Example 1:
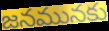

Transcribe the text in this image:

జనమునకు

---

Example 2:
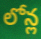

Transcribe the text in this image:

లోన్ల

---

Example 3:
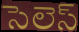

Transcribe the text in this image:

సెలెస్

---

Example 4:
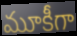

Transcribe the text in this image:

మూకీగా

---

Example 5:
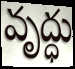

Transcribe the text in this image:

వృద్ధు